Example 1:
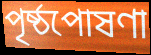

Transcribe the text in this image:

পৃষ্ঠপোষণা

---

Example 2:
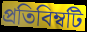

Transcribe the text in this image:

প্রতিবিম্বটি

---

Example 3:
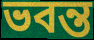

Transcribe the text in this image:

ভবন্ত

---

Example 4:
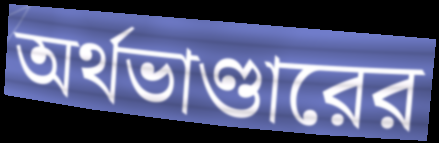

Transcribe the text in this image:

অর্থভাণ্ডারের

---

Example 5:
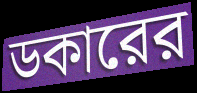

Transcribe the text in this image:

ডকারের